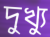
দুখ্যু